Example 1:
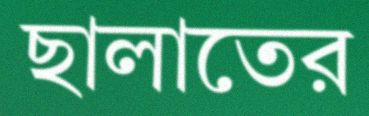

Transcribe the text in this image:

ছালাতের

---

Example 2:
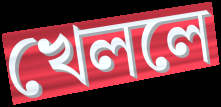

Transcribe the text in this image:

খেললে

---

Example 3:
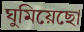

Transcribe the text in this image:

ঘুমিয়েছো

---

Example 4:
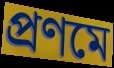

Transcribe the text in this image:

প্রণমে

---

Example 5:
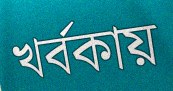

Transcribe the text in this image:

খর্বকায়